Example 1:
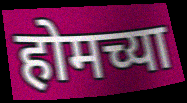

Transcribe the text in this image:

होमच्या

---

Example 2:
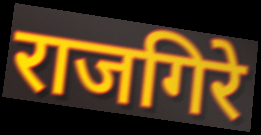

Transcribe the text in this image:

राजगिरे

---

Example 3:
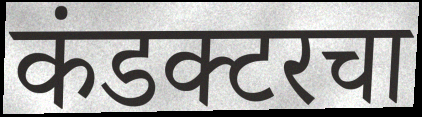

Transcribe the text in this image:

कंडक्टरचा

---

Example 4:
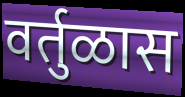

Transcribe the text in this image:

वर्तुळास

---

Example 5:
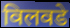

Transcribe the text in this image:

विलवडे